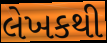
લેખકથી